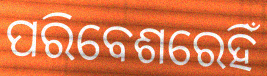
ପରିବେଶରେହିଁ